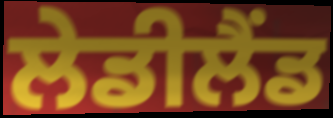
ਲੇਡੀਲੈਂਡ